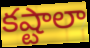
కష్టాలా